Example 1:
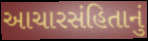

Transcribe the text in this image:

આચારસંહિતાનું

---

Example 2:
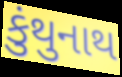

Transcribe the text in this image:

કુંથુનાથ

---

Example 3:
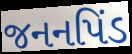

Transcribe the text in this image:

જનનપિંડ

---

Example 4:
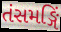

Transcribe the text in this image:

તંસમઙ્ગિં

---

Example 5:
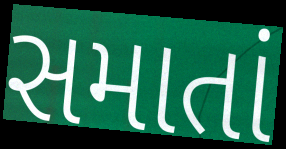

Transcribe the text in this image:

સમાતાં